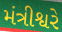
મંત્રીશ્વરે